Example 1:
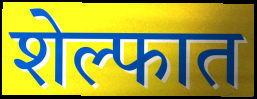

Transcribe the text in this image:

शेल्फात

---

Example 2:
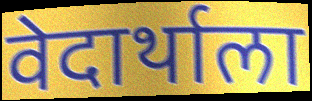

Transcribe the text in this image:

वेदार्थाला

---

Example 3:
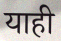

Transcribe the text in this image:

याही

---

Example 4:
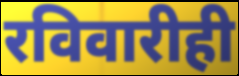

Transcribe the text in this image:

रविवारीही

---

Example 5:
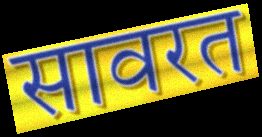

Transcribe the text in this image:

सावरत